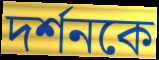
দর্শনকে